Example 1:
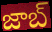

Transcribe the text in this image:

జాబ్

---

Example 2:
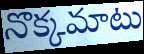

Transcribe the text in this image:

నొక్కమాటు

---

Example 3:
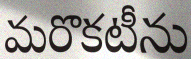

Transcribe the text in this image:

మరొకటీను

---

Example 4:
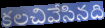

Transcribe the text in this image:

కలచివేసినది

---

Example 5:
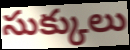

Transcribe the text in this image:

సుక్కులు